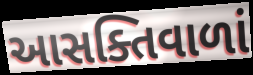
આસક્તિવાળાં